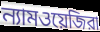
ন্যামওয়েজিরা